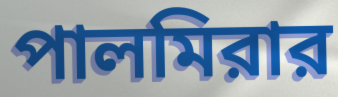
পালমিরার